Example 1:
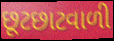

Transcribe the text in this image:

છૂટછાટવાળી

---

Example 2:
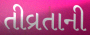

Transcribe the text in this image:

તીવ્રતાની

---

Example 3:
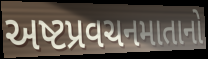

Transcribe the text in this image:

અષ્ટપ્રવચનમાતાનો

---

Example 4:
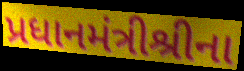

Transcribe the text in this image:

પ્રધાનમંત્રીશ્રીના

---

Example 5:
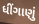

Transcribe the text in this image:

ધીંગાણું